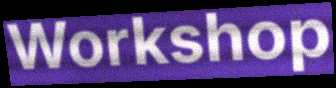
Workshop